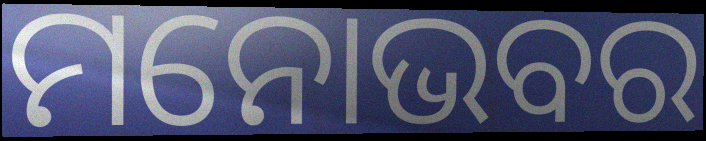
ମନୋଭବର